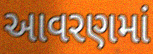
આવરણમાં